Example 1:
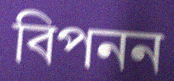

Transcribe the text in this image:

বিপনন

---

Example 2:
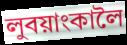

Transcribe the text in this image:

লুবয়াংকালৈ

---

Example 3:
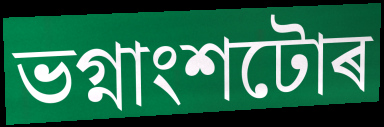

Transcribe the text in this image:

ভগ্নাংশটোৰ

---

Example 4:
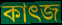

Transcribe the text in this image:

কাৎজ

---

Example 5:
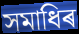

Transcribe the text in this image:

সমাধিৰ